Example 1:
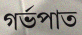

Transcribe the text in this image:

গৰ্ভপাত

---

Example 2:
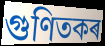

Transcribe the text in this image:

গুণিতকৰ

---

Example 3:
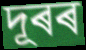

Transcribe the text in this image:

দূৰৰ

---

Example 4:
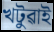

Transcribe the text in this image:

খটুৱাই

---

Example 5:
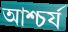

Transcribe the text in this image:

আশ্চৰ্য